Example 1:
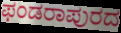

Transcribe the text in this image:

ಫಂಡರಾಪುರದ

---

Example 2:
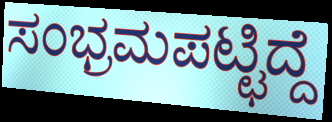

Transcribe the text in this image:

ಸಂಭ್ರಮಪಟ್ಟಿದ್ದೆ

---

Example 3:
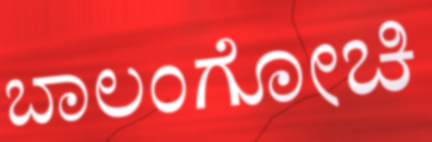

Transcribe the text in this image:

ಬಾಲಂಗೋಚಿ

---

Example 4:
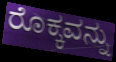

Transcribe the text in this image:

ರೊಕ್ಕವನ್ನು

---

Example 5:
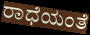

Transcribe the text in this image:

ರಾಧೆಯಂತೆ